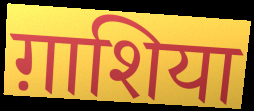
ग़ाशिया